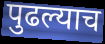
पुढल्याच